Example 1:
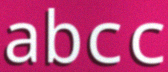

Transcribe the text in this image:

abcc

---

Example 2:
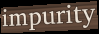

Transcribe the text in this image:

impurity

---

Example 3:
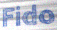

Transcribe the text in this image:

Fido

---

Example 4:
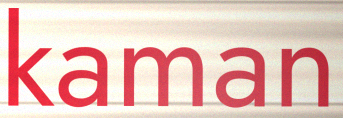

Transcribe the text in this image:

kaman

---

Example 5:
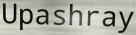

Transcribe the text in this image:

Upashray